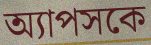
অ্যাপসকে